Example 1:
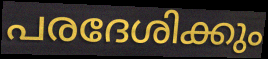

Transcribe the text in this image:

പരദേശിക്കും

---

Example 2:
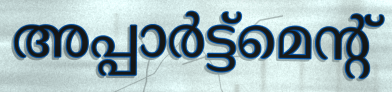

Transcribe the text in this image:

അപ്പാർട്ട്മെന്റ്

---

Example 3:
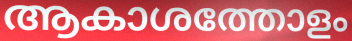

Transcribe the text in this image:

ആകാശത്തോളം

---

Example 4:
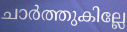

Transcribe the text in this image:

ചാർത്തുകില്ലേ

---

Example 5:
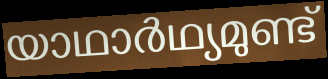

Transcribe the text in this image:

യാഥാർഥ്യമുണ്ട്